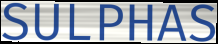
SULPHAS